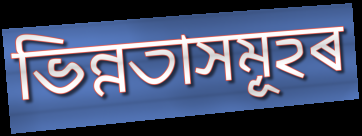
ভিন্নতাসমূহৰ